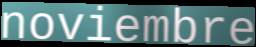
noviembre